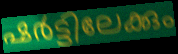
ഷർട്ടിലേക്കും